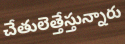
చేతులెత్తేస్తున్నారు